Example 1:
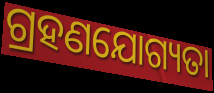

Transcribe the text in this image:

ଗ୍ରହଣଯୋଗ୍ୟତା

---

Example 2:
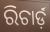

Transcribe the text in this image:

ରିଚାର୍ଡ଼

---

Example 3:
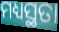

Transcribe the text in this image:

ମଧ୍ୟସ୍ଥତା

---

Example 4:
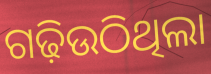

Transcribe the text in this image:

ଗଢ଼ିଉଠିଥିଲା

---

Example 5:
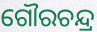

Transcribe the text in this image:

ଗୌରଚନ୍ଦ୍ର